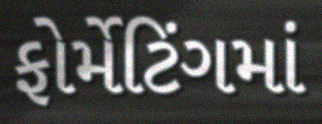
ફોર્મેટિંગમાં